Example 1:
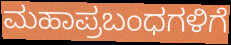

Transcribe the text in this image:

ಮಹಾಪ್ರಬಂಧಗಳಿಗೆ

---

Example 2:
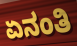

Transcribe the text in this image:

ಏನಂತಿ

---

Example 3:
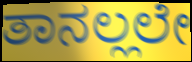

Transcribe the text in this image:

ತಾನಲ್ಲಲೇ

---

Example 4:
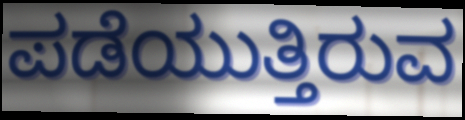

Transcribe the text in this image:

ಪಡೆಯುತ್ತಿರುವ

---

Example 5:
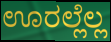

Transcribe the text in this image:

ಊರಲ್ಲೆಲ್ಲ